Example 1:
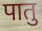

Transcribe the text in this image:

पातु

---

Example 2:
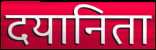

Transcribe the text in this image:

दयानिता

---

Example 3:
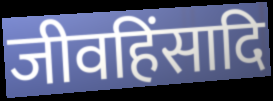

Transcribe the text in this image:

जीवहिंसादि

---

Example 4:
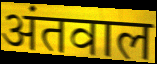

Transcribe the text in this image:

अंतवाल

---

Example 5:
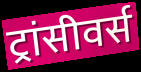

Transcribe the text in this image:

ट्रांसीवर्स